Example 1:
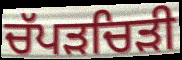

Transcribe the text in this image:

ਚੱਪੜਚਿੜੀ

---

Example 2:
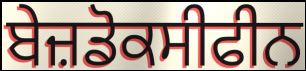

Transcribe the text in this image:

ਬੇਜ਼ਡੋਕਸੀਫੀਨ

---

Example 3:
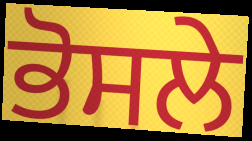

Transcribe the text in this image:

ਭੋਸਲੇ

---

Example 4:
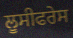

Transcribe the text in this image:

ਲੂਸੀਫਰੇਸ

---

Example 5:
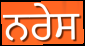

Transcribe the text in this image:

ਨਰੇਸ